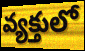
వ్యక్తులో